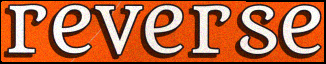
reverse